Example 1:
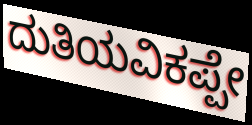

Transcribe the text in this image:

ದುತಿಯವಿಕಪ್ಪೇ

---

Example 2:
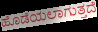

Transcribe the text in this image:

ಹೊಡೆಯಲಾಗುತ್ತದೆ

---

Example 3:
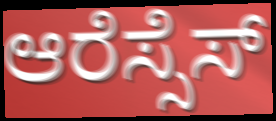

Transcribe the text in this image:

ಆರೆಸ್ಸೆಸ್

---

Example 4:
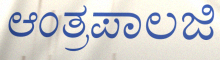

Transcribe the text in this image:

ಆಂತ್ರಪಾಲಜಿ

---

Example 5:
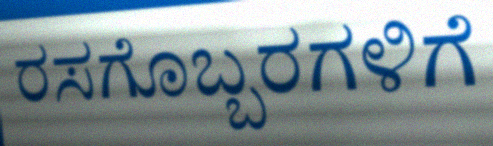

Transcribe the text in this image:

ರಸಗೊಬ್ಬರಗಳಿಗೆ